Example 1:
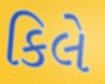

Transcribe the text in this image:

કિલે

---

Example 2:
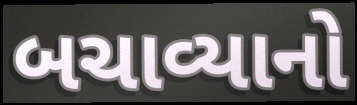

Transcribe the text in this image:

બચાવ્યાનો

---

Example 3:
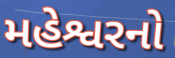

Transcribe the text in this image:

મહેશ્વરનો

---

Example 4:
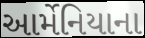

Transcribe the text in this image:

આર્મેનિયાના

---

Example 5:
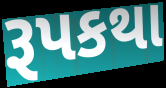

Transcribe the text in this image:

રૂપકથા